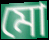
মো